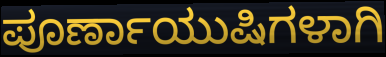
ಪೂರ್ಣಾಯುಷಿಗಳಾಗಿ